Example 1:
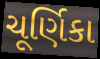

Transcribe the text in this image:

ચૂર્ણિકા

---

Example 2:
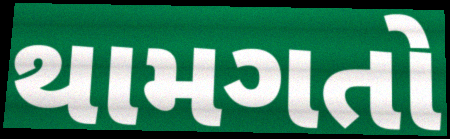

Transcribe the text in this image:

થામગતો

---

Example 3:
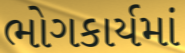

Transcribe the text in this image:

ભોગકાર્યમાં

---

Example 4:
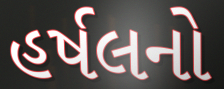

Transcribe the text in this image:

હર્ષલનો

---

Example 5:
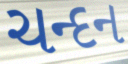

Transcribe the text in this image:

ચન્દન